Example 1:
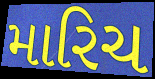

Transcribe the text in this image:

મારિચ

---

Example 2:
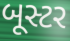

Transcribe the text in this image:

બૂસ્ટર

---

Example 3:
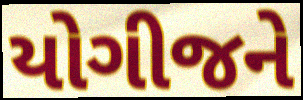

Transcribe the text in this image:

યોગીજને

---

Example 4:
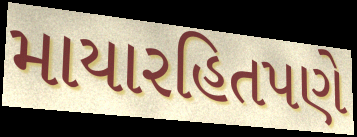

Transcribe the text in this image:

માયારહિતપણે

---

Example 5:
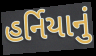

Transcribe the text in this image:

હર્નિયાનું